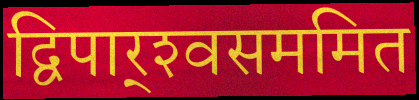
द्विपार्श्वसममित